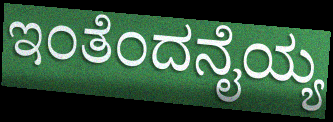
ಇಂತೆಂದನೈಯ್ಯ